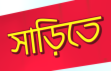
সাড়িতে